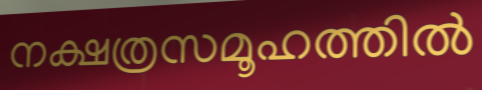
നക്ഷത്രസമൂഹത്തിൽ